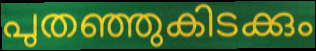
പുതഞ്ഞുകിടക്കും